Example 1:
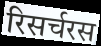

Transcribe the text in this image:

रिसर्चरस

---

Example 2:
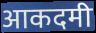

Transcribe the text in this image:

आकदमी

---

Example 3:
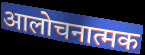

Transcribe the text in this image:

आलोचनात्मक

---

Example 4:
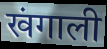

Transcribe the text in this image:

खंगाली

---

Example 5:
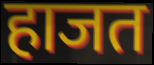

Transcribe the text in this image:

हाजत